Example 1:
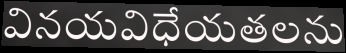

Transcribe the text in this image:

వినయవిధేయతలను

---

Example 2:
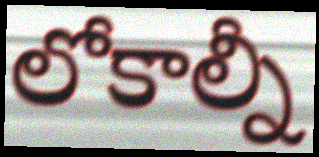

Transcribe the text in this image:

లోకాల్నీ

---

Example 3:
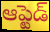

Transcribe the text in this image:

ఆప్టెడ్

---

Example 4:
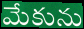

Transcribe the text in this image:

మేకును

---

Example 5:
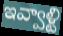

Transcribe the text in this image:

ఇవ్వాళ్టి